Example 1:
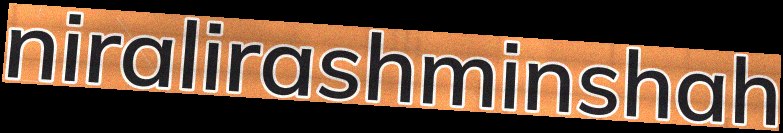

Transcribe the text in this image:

niralirashminshah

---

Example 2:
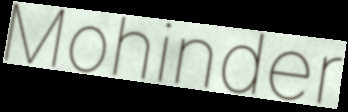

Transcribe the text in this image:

Mohinder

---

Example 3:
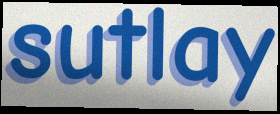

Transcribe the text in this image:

sutlay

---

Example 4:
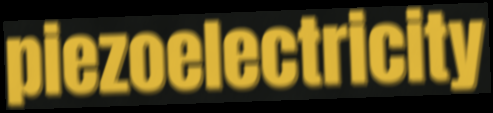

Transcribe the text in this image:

piezoelectricity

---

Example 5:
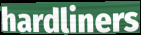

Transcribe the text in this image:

hardliners